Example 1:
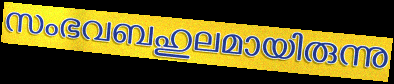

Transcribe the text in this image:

സംഭവബഹുലമായിരുന്നു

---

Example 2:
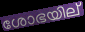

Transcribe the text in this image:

ശോഭയില്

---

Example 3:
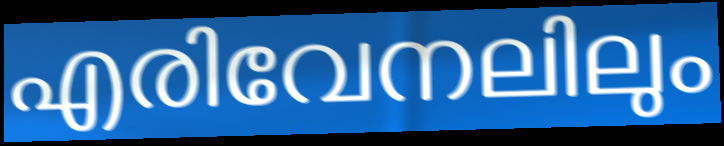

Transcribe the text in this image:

എരിവേനലിലും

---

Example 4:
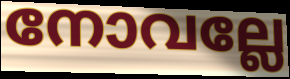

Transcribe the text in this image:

നോവല്ലേ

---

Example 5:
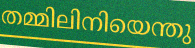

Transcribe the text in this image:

തമ്മിലിനിയെന്തു